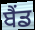
ਬੈੰਡ